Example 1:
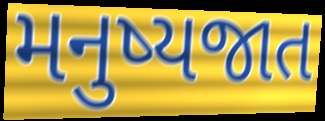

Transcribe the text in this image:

મનુષ્યજાત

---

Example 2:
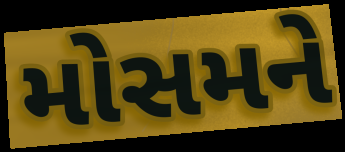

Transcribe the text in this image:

મોસમને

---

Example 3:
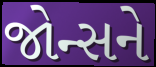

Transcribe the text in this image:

જોન્સને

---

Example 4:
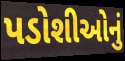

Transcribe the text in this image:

પડોશીઓનું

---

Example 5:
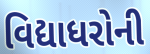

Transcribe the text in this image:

વિદ્યાધરોની